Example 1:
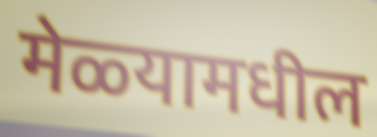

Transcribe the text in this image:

मेळ्यामधील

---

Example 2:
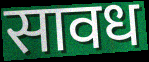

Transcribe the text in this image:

सावध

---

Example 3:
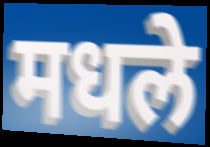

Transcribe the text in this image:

मधले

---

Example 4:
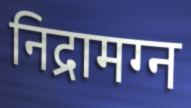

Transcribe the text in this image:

निद्रामग्न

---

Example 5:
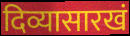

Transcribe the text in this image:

दिव्यासारखं